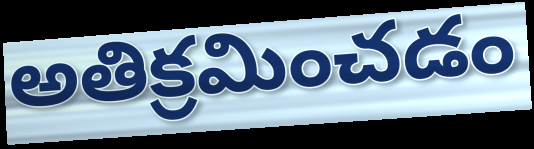
అతిక్రమించడం